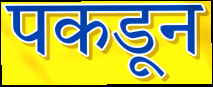
पकडून